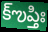
క్ఌప్తిః